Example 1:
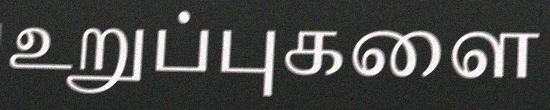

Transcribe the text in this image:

உறுப்புகளை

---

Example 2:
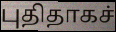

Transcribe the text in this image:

புதிதாகச்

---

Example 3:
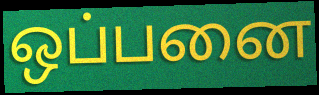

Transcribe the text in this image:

ஒப்பனை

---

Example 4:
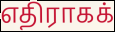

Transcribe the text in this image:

எதிராகக்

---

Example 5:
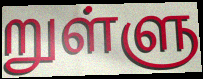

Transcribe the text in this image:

றுள்ளு